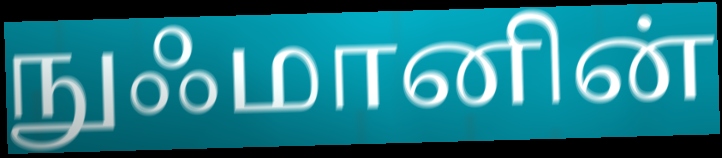
நுஃமானின்